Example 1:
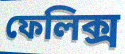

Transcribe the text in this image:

ফেলিক্স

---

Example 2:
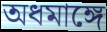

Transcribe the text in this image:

অধমাঙ্গে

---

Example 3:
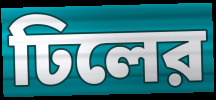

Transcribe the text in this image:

ঢিলের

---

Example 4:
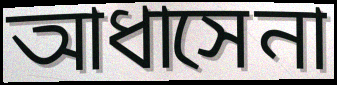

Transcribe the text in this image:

আধাসেনা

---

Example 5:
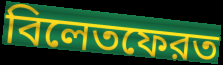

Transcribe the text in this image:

বিলেতফেরত